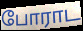
போராட